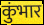
कुंभार